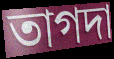
তাগদা